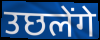
उछलेंगे